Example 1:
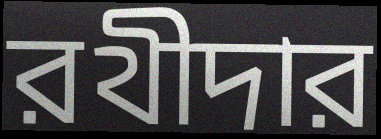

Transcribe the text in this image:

রথীদার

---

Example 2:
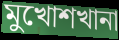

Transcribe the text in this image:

মুখোশখানা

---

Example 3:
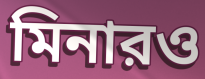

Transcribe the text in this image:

মিনারও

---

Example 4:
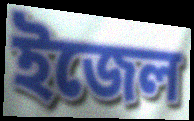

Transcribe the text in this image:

ইজেল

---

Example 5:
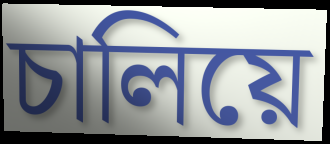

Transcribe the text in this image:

চালিয়ে